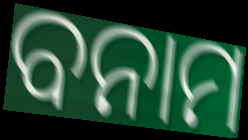
ବନାମ